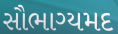
સૌભાગ્યમદ